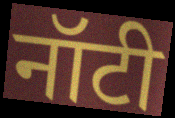
नॉटी